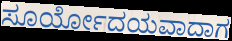
ಸೂರ್ಯೋದಯವಾದಾಗ